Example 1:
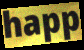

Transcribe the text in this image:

happ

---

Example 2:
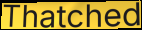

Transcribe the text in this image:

Thatched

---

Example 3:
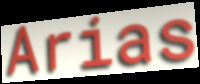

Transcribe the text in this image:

Arias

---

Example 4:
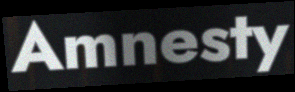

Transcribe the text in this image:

Amnesty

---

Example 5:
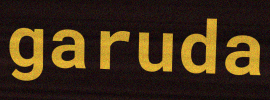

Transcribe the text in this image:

garuda